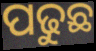
ପଢୁଛ